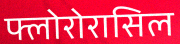
फ्लोरोरासिल